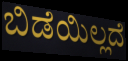
ಬಿಡೆಯಿಲ್ಲದೆ